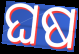
ଘଷ